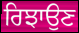
ਰਿਝਾਉਣ